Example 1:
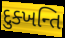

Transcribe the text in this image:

દુક્ખન્તિ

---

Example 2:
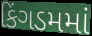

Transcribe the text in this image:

કિંગડમમાં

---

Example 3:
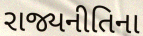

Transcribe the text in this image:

રાજ્યનીતિના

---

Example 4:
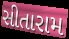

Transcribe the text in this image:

સીતારામ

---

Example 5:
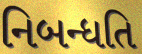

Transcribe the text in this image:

નિબન્ધતિ